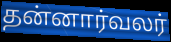
தன்னார்வலர்